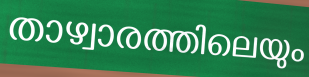
താഴ്വാരത്തിലെയും